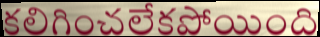
కలిగించలేకపోయింది